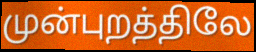
முன்புறத்திலே